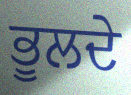
ਭੂਲਦੇ